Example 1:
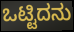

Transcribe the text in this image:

ಒಟ್ಟಿದನು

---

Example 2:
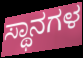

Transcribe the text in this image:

ಸ್ಥಾನಗಳ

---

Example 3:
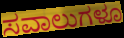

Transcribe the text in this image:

ಸವಾಲುಗಳೂ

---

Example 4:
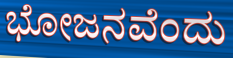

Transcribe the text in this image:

ಭೋಜನವೆಂದು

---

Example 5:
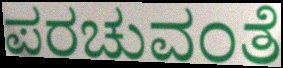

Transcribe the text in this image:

ಪರಚುವಂತೆ